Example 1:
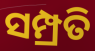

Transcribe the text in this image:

ସମ୍ପ୍ରତି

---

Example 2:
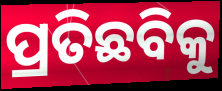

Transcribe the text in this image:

ପ୍ରତିଛବିକୁ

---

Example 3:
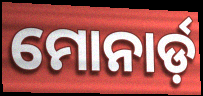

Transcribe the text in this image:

ମୋନାର୍ଡ଼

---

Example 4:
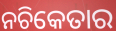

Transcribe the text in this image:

ନଚିକେତାର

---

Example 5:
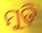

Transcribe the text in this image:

ମୁଡ଼ି